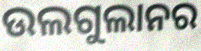
ଉଲଗୁଲାନର